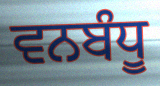
ਵਨਬੰਧੂ